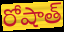
రోషాత్